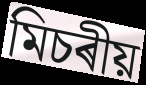
মিচৰীয়